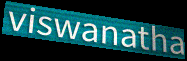
viswanatha